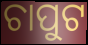
ଚାପୁଟ